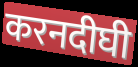
करनदीघी